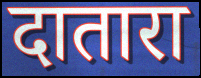
दातारा